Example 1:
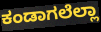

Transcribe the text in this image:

ಕಂಡಾಗಲೆಲ್ಲಾ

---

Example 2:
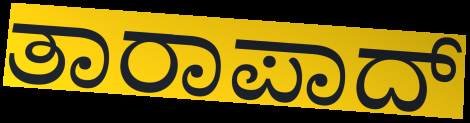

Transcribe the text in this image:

ತಾರಾಪಾದ್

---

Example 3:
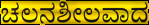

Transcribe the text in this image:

ಚಲನಶೀಲವಾದ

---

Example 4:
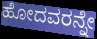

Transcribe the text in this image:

ಹೋದವರನ್ನೇ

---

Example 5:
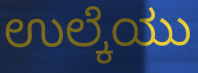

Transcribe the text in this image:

ಉಲ್ಕೆಯು